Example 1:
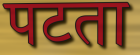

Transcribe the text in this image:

पटता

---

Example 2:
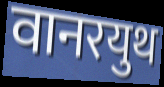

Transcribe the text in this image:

वानरयुथ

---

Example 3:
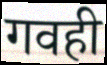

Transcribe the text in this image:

गवही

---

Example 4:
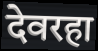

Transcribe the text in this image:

देवरहा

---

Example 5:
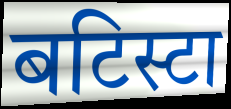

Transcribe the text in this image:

बटिस्टा